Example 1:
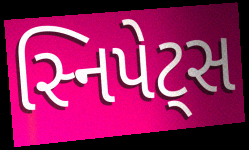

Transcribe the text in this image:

સ્નિપેટ્સ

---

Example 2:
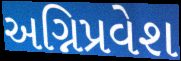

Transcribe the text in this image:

અગ્નિપ્રવેશ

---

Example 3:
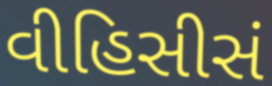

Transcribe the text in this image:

વીહિસીસં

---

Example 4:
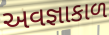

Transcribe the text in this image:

અવજ્ઞાકાળ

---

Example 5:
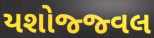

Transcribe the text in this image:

યશોજ્જ્વલ